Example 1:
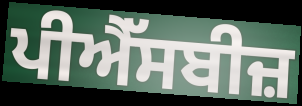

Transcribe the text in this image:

ਪੀਐੱਸਬੀਜ਼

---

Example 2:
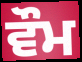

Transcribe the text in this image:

ਵੌਮ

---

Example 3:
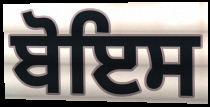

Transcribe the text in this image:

ਬੋਇਸ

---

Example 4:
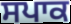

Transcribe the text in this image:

ਸਪਾਕ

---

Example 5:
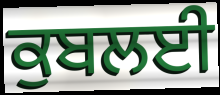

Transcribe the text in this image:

ਕੁਬਲਈ